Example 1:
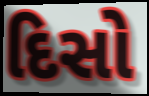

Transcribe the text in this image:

દિસો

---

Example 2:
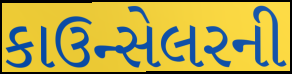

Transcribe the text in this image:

કાઉન્સેલરની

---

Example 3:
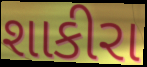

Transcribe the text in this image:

શાકીરા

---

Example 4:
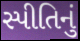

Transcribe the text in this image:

સ્પીતિનું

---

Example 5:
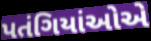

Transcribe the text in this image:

પતંગિયાંઓએ